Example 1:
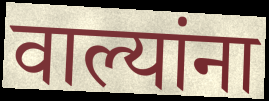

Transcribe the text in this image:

वाल्यांना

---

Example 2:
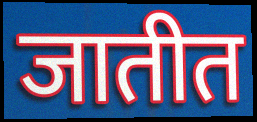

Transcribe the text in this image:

जातीत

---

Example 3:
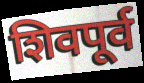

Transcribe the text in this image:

शिवपूर्व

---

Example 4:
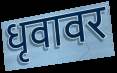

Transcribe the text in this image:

धृवावर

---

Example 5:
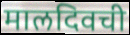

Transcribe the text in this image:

मालदिवची